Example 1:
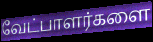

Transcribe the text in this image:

வேட்பாளர்களை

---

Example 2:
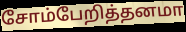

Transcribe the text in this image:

சோம்பேறித்தனமா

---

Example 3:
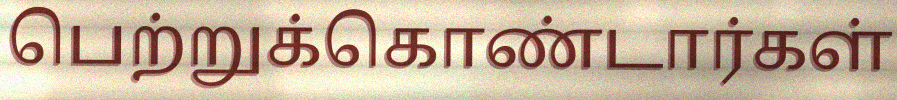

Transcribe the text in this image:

பெற்றுக்கொண்டார்கள்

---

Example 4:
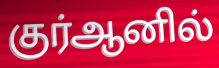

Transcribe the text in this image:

குர்ஆனில்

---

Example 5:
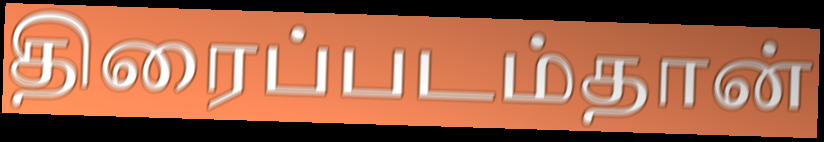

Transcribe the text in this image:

திரைப்படம்தான்